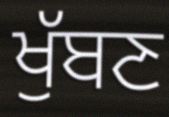
ਖੁੱਬਣ